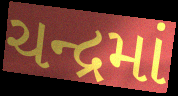
ચન્દ્રમાં